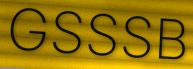
GSSSB